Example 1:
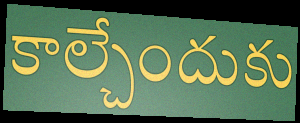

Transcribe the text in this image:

కాల్చేందుకు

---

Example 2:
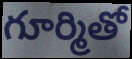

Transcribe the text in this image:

గూర్మితో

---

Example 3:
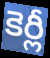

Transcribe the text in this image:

కెర్లీ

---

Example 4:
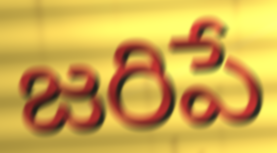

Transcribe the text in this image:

జరిపే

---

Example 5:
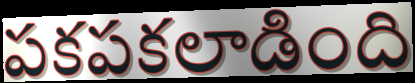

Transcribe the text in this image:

పకపకలాడింది